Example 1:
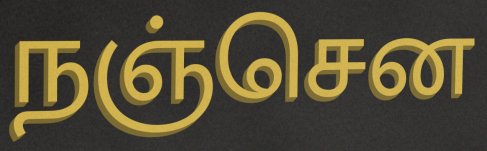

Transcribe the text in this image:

நஞ்சென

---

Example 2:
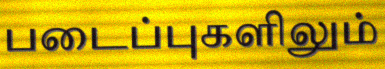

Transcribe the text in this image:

படைப்புகளிலும்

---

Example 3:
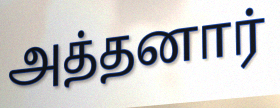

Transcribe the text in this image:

அத்தனார்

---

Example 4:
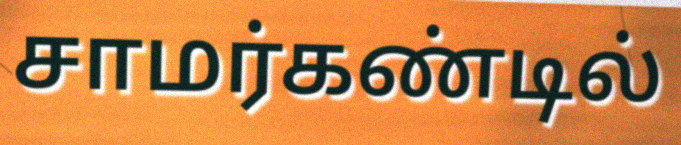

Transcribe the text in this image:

சாமர்கண்டில்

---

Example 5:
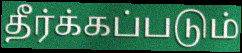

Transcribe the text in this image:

தீர்க்கப்படும்